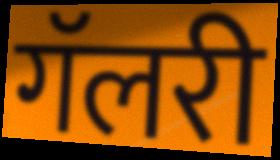
गॅलरी